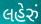
લહેરું